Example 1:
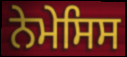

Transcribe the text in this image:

ਨੇਮੇਸਿਸ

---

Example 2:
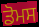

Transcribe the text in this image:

ਡੋਮਸ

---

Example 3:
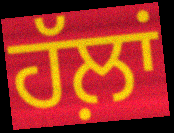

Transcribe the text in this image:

ਹੱਲ਼ਾਂ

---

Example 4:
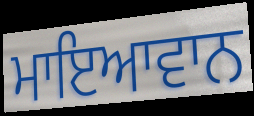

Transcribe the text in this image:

ਮਾਇਆਵਾਨ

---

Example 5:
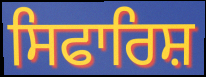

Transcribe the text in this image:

ਸਿਫਾਰਿਸ਼